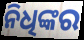
ନିଧିଙ୍କର